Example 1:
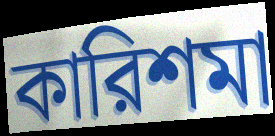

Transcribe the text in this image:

কারিশমা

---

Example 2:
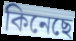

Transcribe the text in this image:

কিনেছে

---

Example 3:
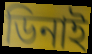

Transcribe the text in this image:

ডিনাই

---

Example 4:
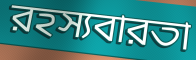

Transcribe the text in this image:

রহস্যবারতা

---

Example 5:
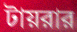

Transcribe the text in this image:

টায়রার